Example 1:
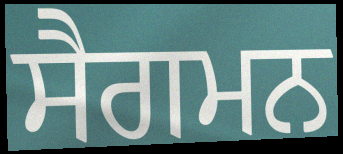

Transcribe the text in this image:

ਸੈਗਮਨ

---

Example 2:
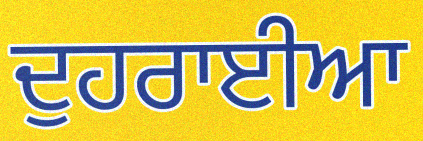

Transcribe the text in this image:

ਦੁਹਰਾਈਆ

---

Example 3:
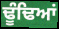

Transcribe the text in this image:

ਢੂੰਢਿਆਂ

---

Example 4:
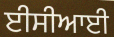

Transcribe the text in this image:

ਈਸੀਆਈ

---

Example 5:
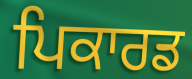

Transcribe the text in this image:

ਪਿਕਾਰਡ